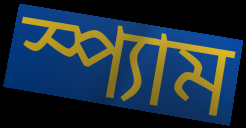
স্প্যাম